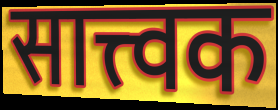
सात्त्वक